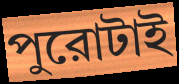
পুরোটাই